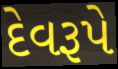
દેવરૂપે